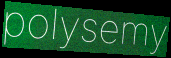
polysemy